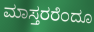
ಮಾಸ್ತರರೆಂದೂ